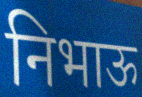
निभाऊ